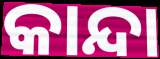
କାନ୍ଦା